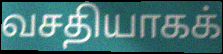
வசதியாகக்